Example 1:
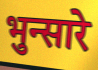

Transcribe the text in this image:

भुन्सारे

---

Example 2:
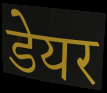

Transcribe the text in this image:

डेयर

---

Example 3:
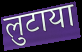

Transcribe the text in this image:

लुटाया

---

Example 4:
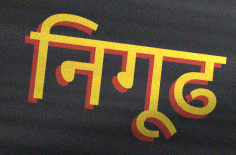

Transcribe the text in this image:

निगूढ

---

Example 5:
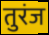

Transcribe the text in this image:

तुरंज